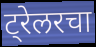
ट्रेलरचा